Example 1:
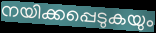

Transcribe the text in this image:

നയിക്കപ്പെടുകയും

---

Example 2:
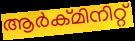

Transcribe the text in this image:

ആർക്മിനിറ്റ്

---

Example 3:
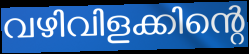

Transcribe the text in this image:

വഴിവിളക്കിന്റെ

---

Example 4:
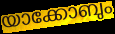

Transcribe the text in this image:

യാക്കോബും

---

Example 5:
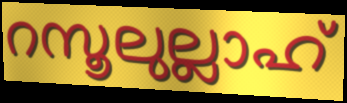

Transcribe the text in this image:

റസൂലുല്ലാഹ്